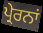
ਪ੍ਰੇਰਨਾਂ